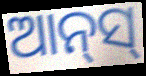
ଆନ୍‌ସ୍